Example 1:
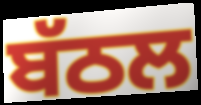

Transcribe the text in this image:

ਬੱਠਲ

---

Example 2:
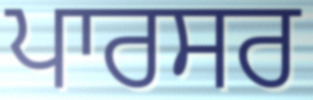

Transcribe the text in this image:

ਪਾਰਸਰ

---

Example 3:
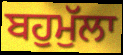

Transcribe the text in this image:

ਬਹੁਮੁੱਲਾ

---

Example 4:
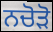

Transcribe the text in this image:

ਨਚੋੜੋ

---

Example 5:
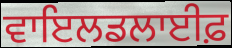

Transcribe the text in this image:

ਵਾਇਲਡਲਾਈਫ਼